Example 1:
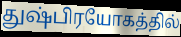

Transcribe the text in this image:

துஷ்பிரயோகத்தில்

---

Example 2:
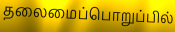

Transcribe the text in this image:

தலைமைப்பொறுப்பில்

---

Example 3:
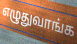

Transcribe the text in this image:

எழுதுவாங்க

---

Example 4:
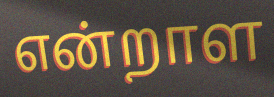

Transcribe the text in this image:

என்றாள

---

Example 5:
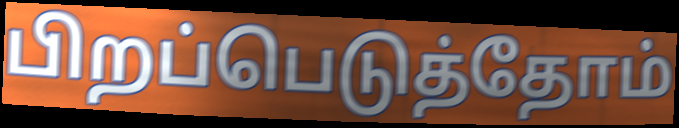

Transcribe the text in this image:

பிறப்பெடுத்தோம்